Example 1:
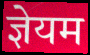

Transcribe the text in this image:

ज्ञेयम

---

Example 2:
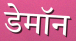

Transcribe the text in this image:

डेमॉन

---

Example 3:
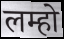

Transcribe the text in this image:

लम्हो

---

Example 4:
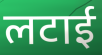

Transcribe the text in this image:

लटाई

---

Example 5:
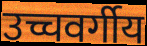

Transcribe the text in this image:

उच्चवर्गीय